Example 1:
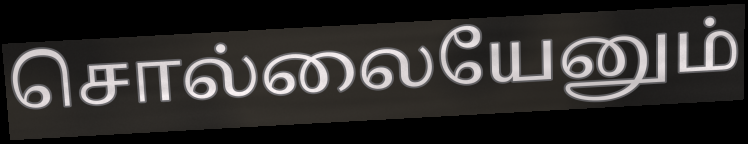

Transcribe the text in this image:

சொல்லையேனும்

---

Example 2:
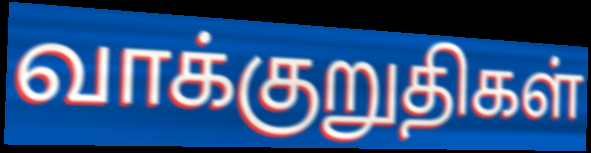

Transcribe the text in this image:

வாக்குறுதிகள்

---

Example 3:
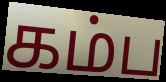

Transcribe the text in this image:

கம்ப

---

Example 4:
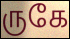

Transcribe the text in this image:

ருகே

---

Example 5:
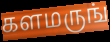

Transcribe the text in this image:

களமருங்